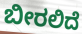
ಬೀರಲಿದೆ